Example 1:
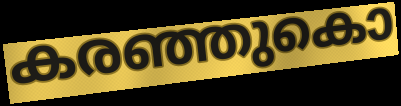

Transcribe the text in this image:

കരഞ്ഞുകൊ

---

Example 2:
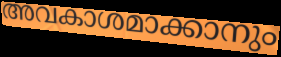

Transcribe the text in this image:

അവകാശമാക്കാനും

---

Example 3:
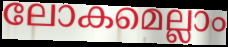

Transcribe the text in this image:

ലോകമെല്ലാം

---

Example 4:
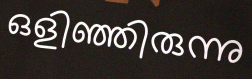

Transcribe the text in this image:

ഒളിഞ്ഞിരുന്നു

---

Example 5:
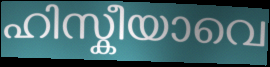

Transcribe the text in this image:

ഹിസ്കീയാവെ